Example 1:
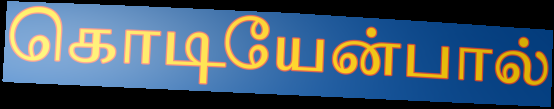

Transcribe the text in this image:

கொடியேன்பால்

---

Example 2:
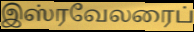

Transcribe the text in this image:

இஸ்ரவேலரைப்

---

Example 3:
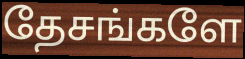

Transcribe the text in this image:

தேசங்களே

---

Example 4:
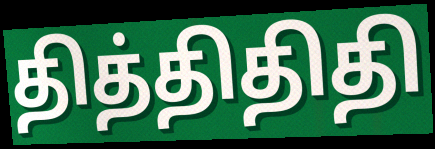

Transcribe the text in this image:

தித்திதிதி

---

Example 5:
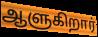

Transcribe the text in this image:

ஆளுகிறார்